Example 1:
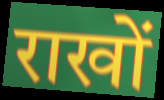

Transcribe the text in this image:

राखों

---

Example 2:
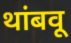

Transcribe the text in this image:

थांबवू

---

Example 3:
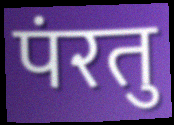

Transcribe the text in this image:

पंरतु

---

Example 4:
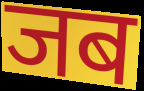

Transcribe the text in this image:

जब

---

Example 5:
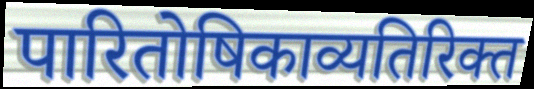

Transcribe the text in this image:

पारितोषिकाव्यतिरिक्त